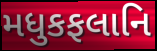
મધુકફલાનિ